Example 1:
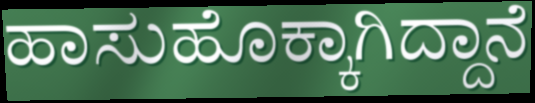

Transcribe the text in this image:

ಹಾಸುಹೊಕ್ಕಾಗಿದ್ದಾನೆ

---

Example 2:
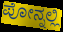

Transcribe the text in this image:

ಪೋನ್ನಲ್ಲಿ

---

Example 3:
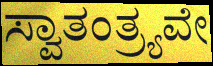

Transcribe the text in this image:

ಸ್ವಾತಂತ್ರ್ಯವೇ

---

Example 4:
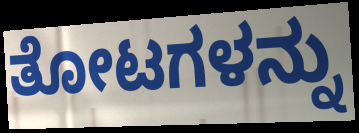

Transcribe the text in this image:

ತೋಟಗಳನ್ನು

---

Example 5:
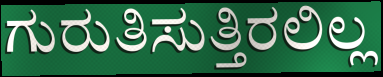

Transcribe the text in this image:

ಗುರುತಿಸುತ್ತಿರಲಿಲ್ಲ